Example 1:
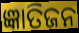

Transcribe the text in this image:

ଜ୍ଞାତିଜନ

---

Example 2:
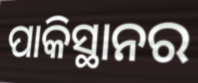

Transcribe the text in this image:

ପାକିସ୍ଥାନର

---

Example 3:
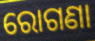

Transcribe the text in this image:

ରୋଗଣା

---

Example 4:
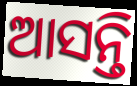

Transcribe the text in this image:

ଆସନ୍ତି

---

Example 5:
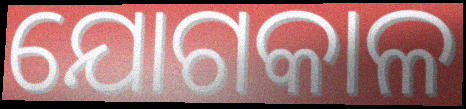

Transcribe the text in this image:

ଯୋଗକାଳ